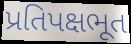
પ્રતિપક્ષભૂત